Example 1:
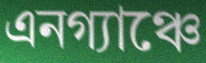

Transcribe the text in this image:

এনগ্যাঞ্চে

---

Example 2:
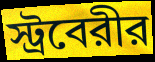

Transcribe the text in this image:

স্ট্রবেরীর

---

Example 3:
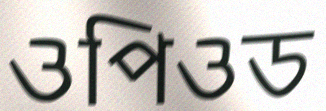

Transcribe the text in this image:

ওপিওড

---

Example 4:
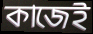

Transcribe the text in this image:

কাজেই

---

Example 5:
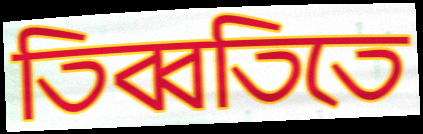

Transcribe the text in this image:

তিব্বতিতে